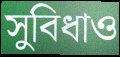
সুবিধাও